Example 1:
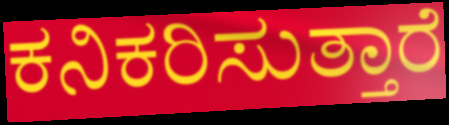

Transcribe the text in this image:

ಕನಿಕರಿಸುತ್ತಾರೆ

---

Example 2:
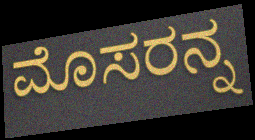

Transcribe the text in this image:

ಮೊಸರನ್ನ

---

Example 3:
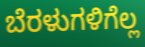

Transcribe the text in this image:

ಬೆರಳುಗಳಿಗೆಲ್ಲ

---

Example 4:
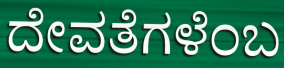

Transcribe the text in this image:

ದೇವತೆಗಳೆಂಬ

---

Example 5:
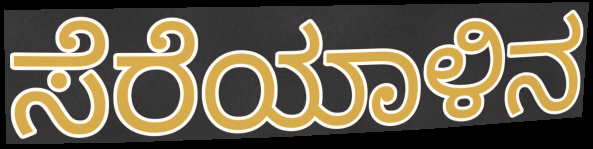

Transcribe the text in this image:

ಸೆರೆಯಾಳಿನ